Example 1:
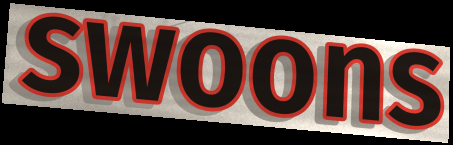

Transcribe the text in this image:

swoons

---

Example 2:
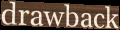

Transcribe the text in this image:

drawback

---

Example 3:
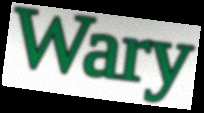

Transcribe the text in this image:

Wary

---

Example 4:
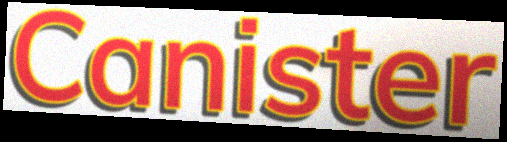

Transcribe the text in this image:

Canister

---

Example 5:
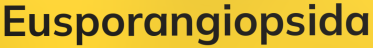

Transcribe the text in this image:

Eusporangiopsida